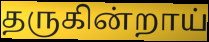
தருகின்றாய்